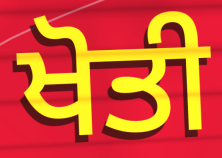
ਖੋਤੀ